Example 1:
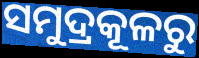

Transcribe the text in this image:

ସମୁଦ୍ରକୂଳରୁ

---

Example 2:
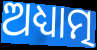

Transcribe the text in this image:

ଅଧ୍ୟାତ୍ମ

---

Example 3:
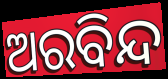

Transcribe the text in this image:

ଅରବିନ୍ଦ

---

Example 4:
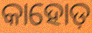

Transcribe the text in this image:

କାହୋଡ଼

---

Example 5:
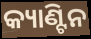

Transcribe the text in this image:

କ୍ୟାଣ୍ଟିନ